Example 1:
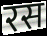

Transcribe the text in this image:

रस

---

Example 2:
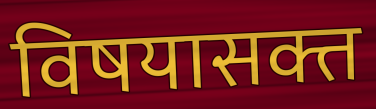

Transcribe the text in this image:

विषयासक्त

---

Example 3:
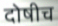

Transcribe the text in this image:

दोषीच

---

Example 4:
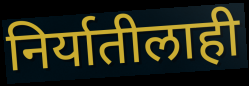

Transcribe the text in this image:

निर्यातीलाही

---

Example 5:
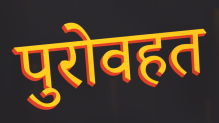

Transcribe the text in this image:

पुरोवहत